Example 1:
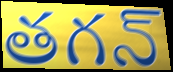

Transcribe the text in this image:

తగన్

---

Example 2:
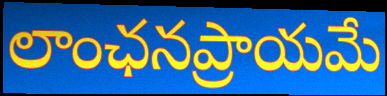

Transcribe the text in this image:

లాంఛనప్రాయమే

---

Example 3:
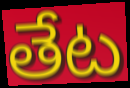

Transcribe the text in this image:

తేట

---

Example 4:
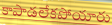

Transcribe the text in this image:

కాపాడలేకపోయారు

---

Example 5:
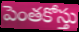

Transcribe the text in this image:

పెంతకోస్తు